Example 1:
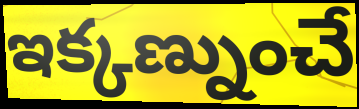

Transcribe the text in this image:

ఇక్కణ్నుంచే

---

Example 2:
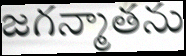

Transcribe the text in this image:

జగన్మాతను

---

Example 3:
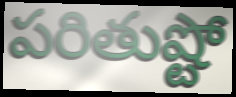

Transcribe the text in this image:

పరితుష్టో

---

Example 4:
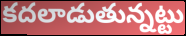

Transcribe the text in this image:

కదలాడుతున్నట్టు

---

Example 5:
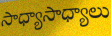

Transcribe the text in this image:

సాధ్యాసాధ్యాలు